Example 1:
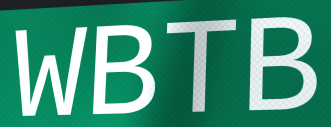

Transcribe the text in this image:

WBTB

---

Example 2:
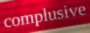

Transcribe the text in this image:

complusive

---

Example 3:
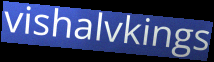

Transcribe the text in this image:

vishalvkings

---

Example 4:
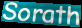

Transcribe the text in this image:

Sorath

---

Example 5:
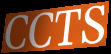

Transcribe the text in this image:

CCTS